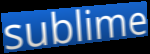
sublime